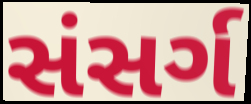
સંસર્ગ